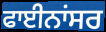
ਫਾਈਨਾਂਸਰ